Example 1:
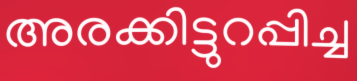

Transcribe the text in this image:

അരക്കിട്ടുറപ്പിച്ച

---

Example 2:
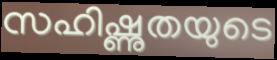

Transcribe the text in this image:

സഹിഷ്ണുതയുടെ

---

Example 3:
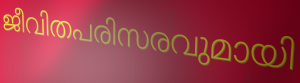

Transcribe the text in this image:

ജീവിതപരിസരവുമായി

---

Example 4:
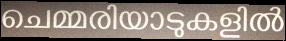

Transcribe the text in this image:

ചെമ്മരിയാടുകളിൽ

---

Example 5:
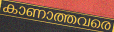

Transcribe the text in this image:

കാണാത്തവരെ